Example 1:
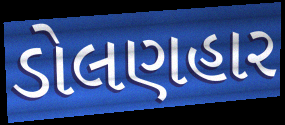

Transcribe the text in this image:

ડોલણહાર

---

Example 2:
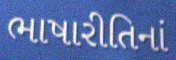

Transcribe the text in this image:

ભાષારીતિનાં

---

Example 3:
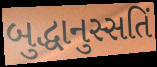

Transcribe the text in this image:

બુદ્ધાનુસ્સતિં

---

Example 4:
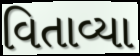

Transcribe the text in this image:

વિતાવ્યા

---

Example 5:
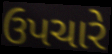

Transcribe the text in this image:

ઉપચારે